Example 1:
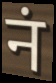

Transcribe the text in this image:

नं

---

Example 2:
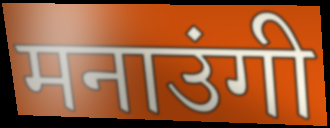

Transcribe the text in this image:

मनाउंगी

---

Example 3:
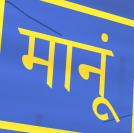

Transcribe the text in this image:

मानूं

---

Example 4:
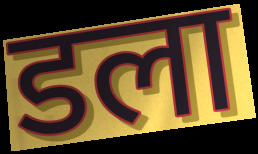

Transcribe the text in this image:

डला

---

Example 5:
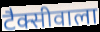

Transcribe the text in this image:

टैक्सीवाला